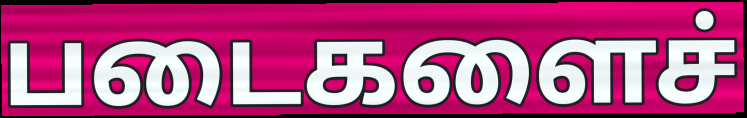
படைகளைச்